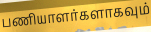
பணியாளர்களாகவும்